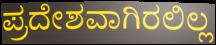
ಪ್ರದೇಶವಾಗಿರಲಿಲ್ಲ